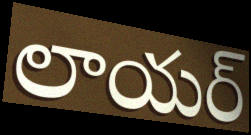
లాయర్